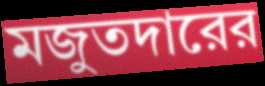
মজুতদারের